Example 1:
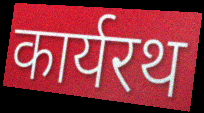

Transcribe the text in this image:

कार्यरथ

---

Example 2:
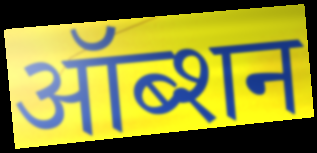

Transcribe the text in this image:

ऑब्शन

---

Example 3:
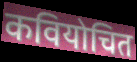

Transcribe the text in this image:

कवियोचित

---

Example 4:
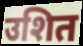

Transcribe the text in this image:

उशित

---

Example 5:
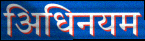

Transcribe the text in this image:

अिधिनयम